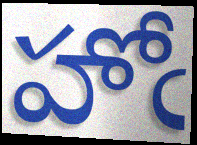
హోఁ